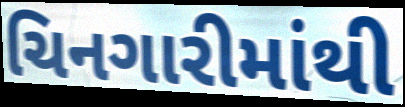
ચિનગારીમાંથી